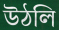
উঠলি